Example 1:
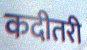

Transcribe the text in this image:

कदीतरी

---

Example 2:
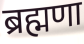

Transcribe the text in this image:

ब्रह्मणा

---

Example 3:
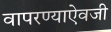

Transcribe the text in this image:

वापरण्याऐवजी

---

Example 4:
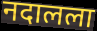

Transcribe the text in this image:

नदालला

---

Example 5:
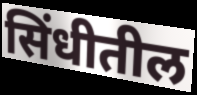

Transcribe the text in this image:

सिंधीतील